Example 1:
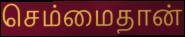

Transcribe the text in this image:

செம்மைதான்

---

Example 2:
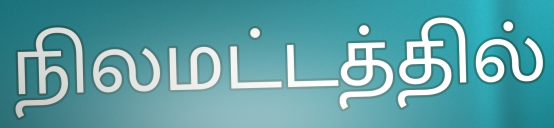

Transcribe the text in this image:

நிலமட்டத்தில்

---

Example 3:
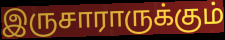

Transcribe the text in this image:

இருசாராருக்கும்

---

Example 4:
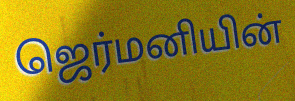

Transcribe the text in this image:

ஜெர்மனியின்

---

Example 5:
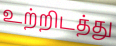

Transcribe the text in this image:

உற்றிடத்து